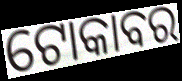
ଟୋକାବର